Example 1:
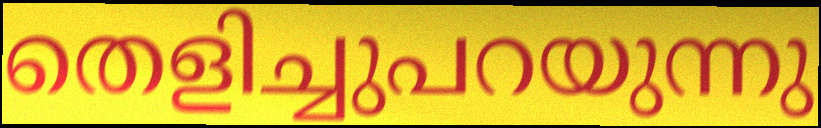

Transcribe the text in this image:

തെളിച്ചുപറയുന്നു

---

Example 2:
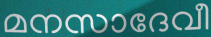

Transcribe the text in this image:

മനസാദേവീ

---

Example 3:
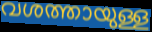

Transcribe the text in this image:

വശത്തായുള്ള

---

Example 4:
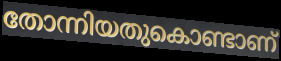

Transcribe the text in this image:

തോന്നിയതുകൊണ്ടാണ്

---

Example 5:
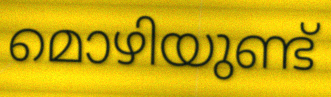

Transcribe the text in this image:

മൊഴിയുണ്ട്